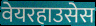
वेयरहाउसेस